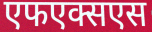
एफएक्सएस